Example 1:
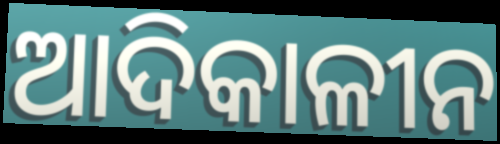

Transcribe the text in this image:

ଆଦିକାଳୀନ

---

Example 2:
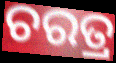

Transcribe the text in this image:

ଚରତ୍ର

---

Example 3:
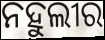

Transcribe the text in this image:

ନହୁଲୀର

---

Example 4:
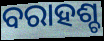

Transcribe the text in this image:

ବରାହଶ୍ଚ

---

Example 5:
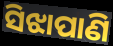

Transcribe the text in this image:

ସିଝାପାଣି